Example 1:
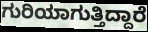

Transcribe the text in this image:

ಗುರಿಯಾಗುತ್ತಿದ್ದಾರೆ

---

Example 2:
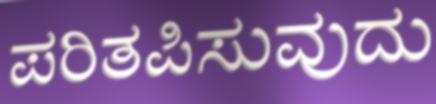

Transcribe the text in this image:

ಪರಿತಪಿಸುವುದು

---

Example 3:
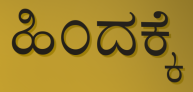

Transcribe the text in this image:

ಹಿಂದಕ್ಕೆ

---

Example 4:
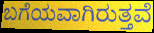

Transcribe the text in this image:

ಬಗೆಯವಾಗಿರುತ್ತವೆ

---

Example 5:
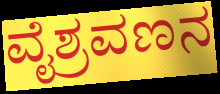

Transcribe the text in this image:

ವೈಶ್ರವಣನ